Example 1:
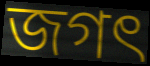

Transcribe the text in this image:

জগৎ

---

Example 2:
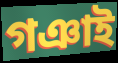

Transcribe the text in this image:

গঞাই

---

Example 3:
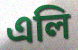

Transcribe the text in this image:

এলি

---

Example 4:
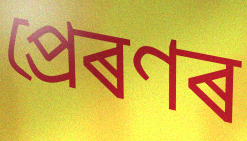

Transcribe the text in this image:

প্ৰেৰণৰ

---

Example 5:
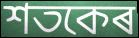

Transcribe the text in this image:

শতকেৰ